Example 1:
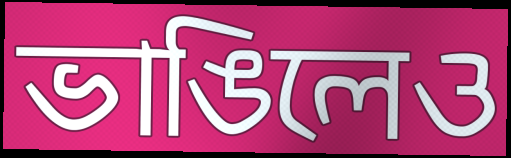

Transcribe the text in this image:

ভাঙিলেও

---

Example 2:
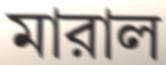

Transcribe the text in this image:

মারাল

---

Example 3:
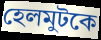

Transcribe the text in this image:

হেলমুটকে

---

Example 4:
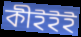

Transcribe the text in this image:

কীইইই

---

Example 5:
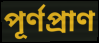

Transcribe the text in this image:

পূর্ণপ্রাণ